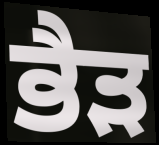
ਭੈੜ